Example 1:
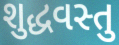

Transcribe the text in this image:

શુદ્ધવસ્તુ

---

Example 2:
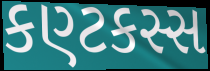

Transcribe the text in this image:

કણ્ટકસ્સ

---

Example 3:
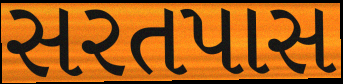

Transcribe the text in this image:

સરતપાસ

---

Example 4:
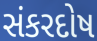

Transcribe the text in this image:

સંકરદોષ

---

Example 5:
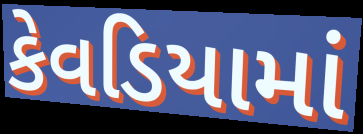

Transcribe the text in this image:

કેવડિયામાં